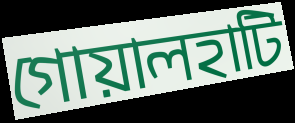
গোয়ালহাটি